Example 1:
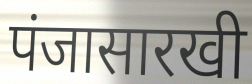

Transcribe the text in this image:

पंजासारखी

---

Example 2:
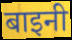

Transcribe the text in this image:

बाइनी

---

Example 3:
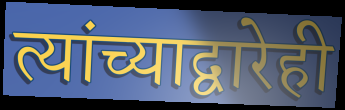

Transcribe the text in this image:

त्यांच्याद्वारेही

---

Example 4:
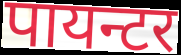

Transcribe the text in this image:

पायन्टर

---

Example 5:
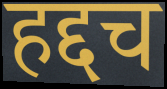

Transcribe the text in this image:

हद्दच